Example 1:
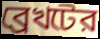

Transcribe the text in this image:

ব্রেখটের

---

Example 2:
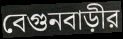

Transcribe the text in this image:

বেগুনবাড়ীর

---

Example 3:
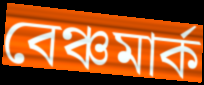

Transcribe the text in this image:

বেঞ্চমার্ক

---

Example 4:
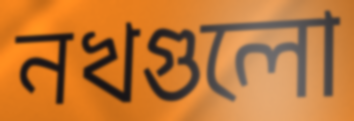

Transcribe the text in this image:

নখগুলো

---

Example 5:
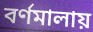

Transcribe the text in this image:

বর্ণমালায়